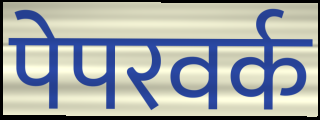
पेपरवर्क